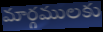
మార్గములకు